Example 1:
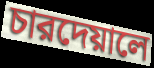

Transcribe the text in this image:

চারদেয়ালে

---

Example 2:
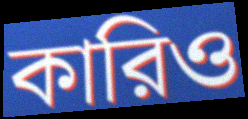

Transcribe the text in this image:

কারিও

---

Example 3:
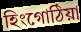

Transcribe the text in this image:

হিংগোঠিয়া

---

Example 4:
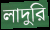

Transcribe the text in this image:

লাদুরি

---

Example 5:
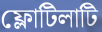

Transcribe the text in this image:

ফ্লোটিলাটি